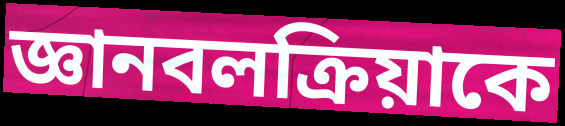
জ্ঞানবলক্রিয়াকে